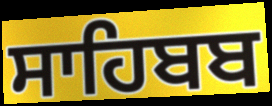
ਸਾਹਿਬਬ